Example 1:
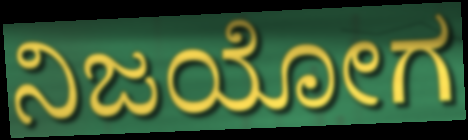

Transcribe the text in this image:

ನಿಜಯೋಗ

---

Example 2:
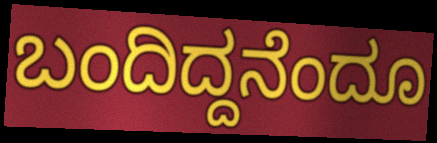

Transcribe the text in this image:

ಬಂದಿದ್ದನೆಂದೂ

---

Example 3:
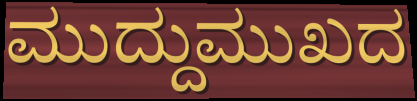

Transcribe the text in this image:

ಮುದ್ದುಮುಖದ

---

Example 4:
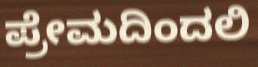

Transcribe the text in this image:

ಪ್ರೇಮದಿಂದಲಿ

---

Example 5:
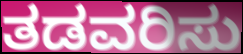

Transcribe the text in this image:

ತಡವರಿಸು